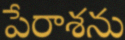
పేరాశను